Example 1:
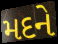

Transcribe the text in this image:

મદને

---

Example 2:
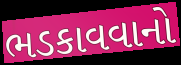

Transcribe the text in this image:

ભડકાવવાનો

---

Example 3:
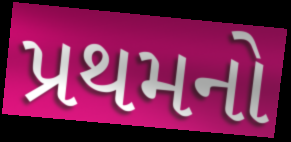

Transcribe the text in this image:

પ્રથમનો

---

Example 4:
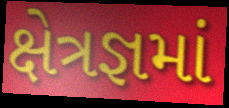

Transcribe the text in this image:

ક્ષેત્રજ્ઞમાં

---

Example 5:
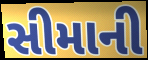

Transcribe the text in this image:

સીમાની